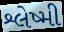
શ્લેષ્મી